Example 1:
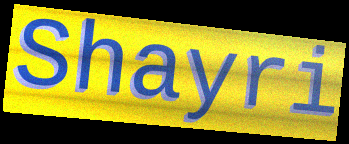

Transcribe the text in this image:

Shayri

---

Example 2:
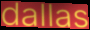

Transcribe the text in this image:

dallas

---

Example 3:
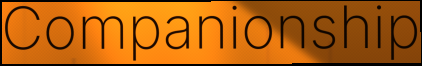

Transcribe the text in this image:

Companionship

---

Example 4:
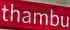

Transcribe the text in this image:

thambu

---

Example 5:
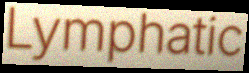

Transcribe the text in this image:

Lymphatic